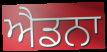
ਐਡਨਾ